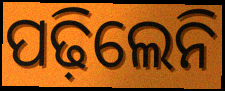
ପଢ଼ିଲେନି